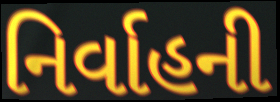
નિર્વાહની